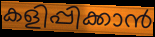
കളിപ്പിക്കാൻ